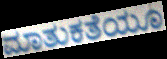
ಮಾತುಕತೆಯೂ